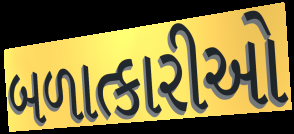
બળાત્કારીઓ